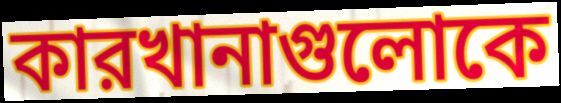
কারখানাগুলোকে